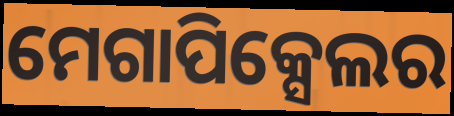
ମେଗାପିକ୍ସେଲର